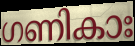
ഗണികാഃ